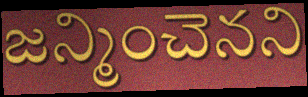
జన్మించెనని